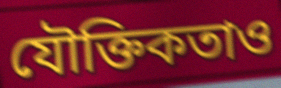
যৌক্তিকতাও